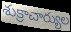
శుక్రాచార్యుల